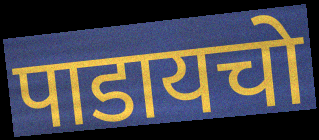
पाडायचो